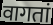
वागतां